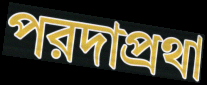
পরদাপ্রথা